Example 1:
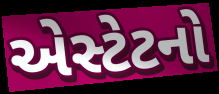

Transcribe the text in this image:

એસ્ટેટનો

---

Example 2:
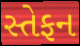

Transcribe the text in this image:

સ્તેફન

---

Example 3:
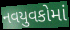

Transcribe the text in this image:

નવયુવકોમાં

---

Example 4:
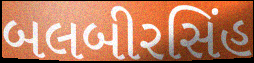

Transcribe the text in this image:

બલબીરસિંહ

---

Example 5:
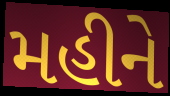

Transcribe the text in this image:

મહીને